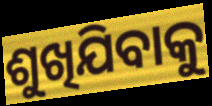
ଶୁଖିଯିବାକୁ